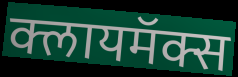
क्लायमॅक्स